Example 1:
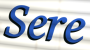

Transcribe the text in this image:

Sere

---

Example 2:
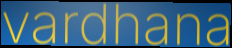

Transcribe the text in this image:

vardhana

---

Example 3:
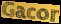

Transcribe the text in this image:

Gacor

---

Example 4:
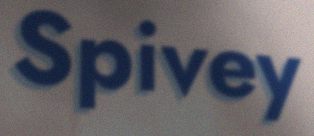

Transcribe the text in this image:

Spivey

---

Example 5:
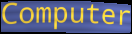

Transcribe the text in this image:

Computer